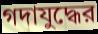
গদাযুদ্ধের